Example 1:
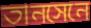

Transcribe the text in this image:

তানসেনে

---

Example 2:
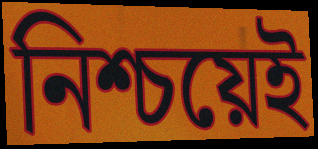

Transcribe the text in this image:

নিশ্চয়েই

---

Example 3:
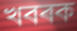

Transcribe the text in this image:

খবৰক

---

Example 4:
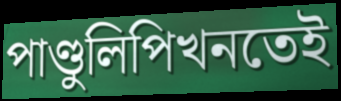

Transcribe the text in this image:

পাণ্ডুলিপিখনতেই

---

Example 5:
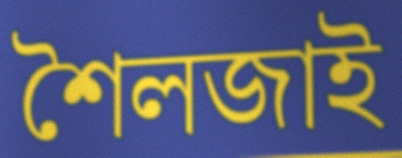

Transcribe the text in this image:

শৈলজাই